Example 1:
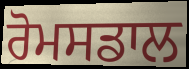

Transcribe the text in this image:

ਰੋਮਸਡਾਲ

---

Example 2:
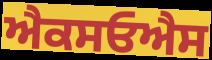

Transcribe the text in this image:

ਐਕਸਓਐਸ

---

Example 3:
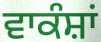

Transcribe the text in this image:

ਵਾਕੰਸ਼ਾਂ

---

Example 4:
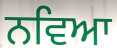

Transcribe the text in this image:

ਨਵਿਆ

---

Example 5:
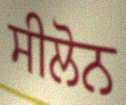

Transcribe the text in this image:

ਸੀਲੋਨ